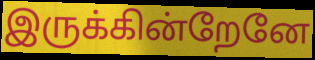
இருக்கின்றேனே